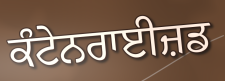
ਕੰਟੇਨਰਾਈਜ਼ਡ